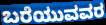
ಬರೆಯುವವರ